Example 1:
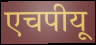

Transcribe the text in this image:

एचपीयू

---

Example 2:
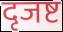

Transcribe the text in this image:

दृजष्ट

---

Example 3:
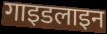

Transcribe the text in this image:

गाइडलाइन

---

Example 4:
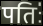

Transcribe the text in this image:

पतिः॑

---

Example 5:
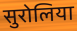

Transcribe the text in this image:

सुरोलिया